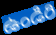
ఉండిరి